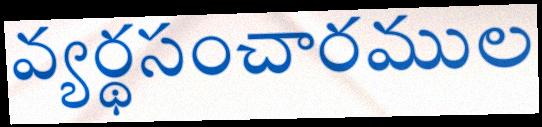
వ్యర్థసంచారముల